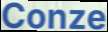
Conze